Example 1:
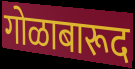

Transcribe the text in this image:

गोळाबारूद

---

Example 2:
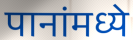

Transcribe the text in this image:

पानांमध्ये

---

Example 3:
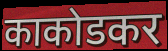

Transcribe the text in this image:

काकोडकर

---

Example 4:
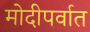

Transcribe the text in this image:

मोदीपर्वात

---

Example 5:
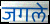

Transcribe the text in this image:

जगले